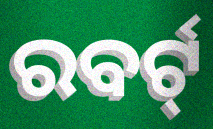
ରବର୍ଟ୍